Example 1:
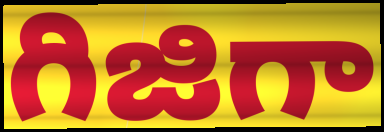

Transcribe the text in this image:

గిజిగా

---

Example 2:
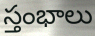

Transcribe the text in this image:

స్తంభాలు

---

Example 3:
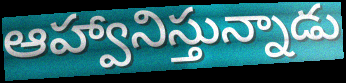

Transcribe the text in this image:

ఆహ్వానిస్తున్నాడు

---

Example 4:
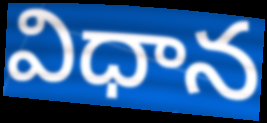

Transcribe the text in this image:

విధాన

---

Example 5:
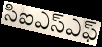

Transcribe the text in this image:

సిఐఎస్ఎఫ్